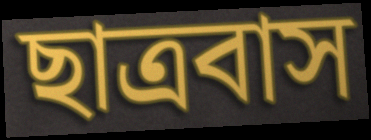
ছাত্রবাস